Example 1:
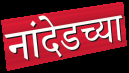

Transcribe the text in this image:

नांदेडच्या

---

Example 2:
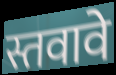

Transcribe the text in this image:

स्तवावे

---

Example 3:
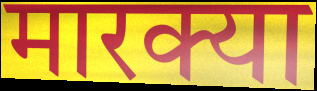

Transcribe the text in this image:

मारक्या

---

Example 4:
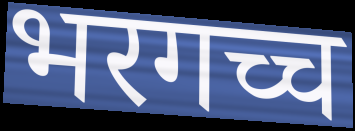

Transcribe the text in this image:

भरगच्च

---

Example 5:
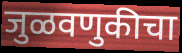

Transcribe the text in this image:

जुळवणुकीचा